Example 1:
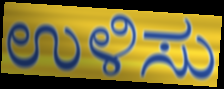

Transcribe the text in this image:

ಉಳಿಸು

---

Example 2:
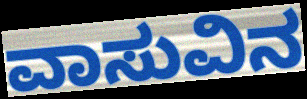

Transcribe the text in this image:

ವಾಸುವಿನ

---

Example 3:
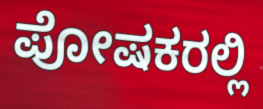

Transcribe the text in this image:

ಪೋಷಕರಲ್ಲಿ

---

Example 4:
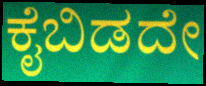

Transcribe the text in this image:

ಕೈಬಿಡದೇ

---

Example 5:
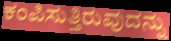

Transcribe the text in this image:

ಕಂಪಿಸುತ್ತಿರುವುದನ್ನು